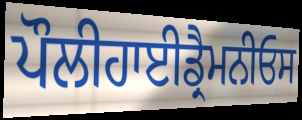
ਪੌਲੀਹਾਈਡ੍ਰੈਮਨੀਓਸ